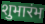
शुभारंभ